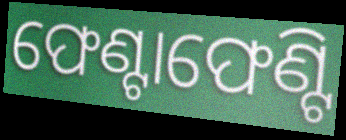
ଫେଣ୍ଟାଫେଣ୍ଟି